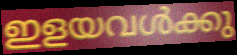
ഇളയവൾക്കു